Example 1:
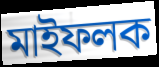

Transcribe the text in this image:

মাইফলক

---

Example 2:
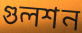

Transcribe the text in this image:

গুলশন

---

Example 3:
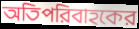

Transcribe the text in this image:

অতিপরিবাহকের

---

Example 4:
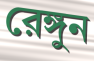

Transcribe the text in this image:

রেঙ্গুন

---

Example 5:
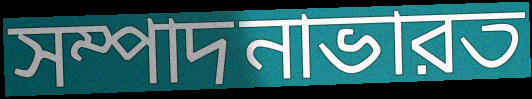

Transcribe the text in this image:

সম্পাদনাভারত